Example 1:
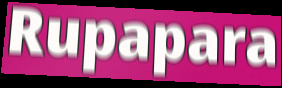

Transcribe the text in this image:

Rupapara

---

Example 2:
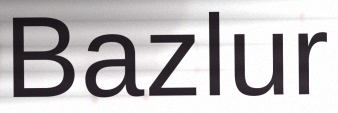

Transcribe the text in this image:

Bazlur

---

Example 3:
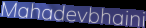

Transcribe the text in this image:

Mahadevbhaini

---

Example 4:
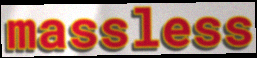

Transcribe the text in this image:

massless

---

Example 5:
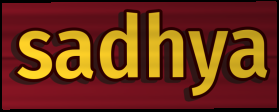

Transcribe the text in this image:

sadhya